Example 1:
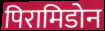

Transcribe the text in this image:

पिरामिडोन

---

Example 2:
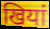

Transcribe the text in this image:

खियां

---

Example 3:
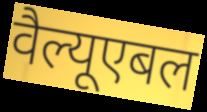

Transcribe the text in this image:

वैल्यूएबल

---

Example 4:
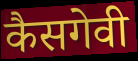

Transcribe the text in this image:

कैसगेवी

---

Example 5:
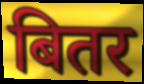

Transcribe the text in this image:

बितर